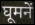
घूमनें